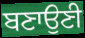
ਬਣਾਉਣੀ